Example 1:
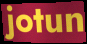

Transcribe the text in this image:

jotun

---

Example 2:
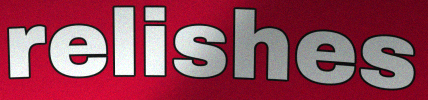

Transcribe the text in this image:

relishes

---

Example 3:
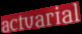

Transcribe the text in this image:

actuarial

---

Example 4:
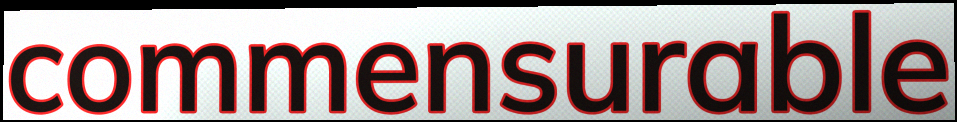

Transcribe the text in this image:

commensurable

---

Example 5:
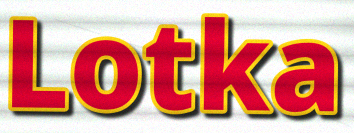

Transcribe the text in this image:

Lotka